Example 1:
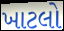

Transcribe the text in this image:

ખાટલો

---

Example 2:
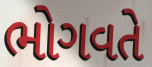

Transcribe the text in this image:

ભોગવતે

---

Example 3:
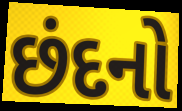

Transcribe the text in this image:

છંદનો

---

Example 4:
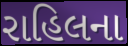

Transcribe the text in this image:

રાહિલના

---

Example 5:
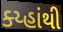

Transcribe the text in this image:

ક્ય્હાંથી